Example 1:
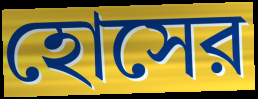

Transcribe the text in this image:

হোসের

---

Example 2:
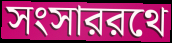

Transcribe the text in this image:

সংসাররথে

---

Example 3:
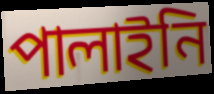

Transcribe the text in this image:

পালাইনি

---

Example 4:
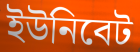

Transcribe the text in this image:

ইউনিবেট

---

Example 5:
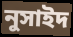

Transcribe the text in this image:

নুসাইদ